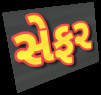
સેફર